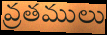
వ్రతములు